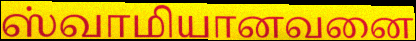
ஸ்வாமியானவனை